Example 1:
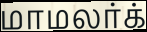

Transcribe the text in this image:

மாமலர்க்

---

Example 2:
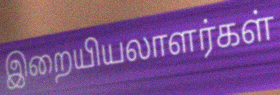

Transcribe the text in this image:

இறையியலாளர்கள்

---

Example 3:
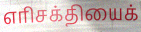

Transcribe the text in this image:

எரிசக்தியைக்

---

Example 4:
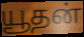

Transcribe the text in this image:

யூதன்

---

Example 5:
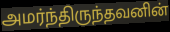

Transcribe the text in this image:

அமர்ந்திருந்தவனின்